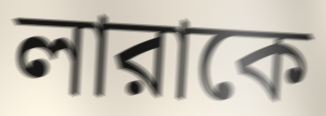
লারাকে